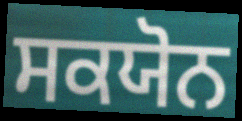
ਸਕਯੋਨ